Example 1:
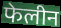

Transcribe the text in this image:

फेलीन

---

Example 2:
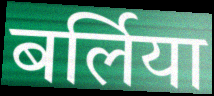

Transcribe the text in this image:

बर्लिया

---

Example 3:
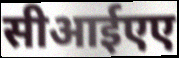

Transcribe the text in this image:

सीआईएए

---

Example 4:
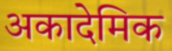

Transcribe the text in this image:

अकादेमिक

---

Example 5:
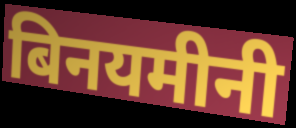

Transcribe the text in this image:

बिनयमीनी